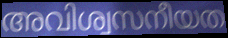
അവിശ്വസനീയത